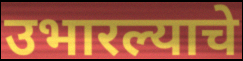
उभारल्याचे